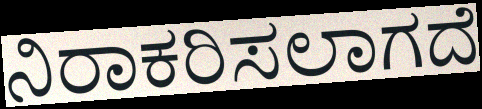
ನಿರಾಕರಿಸಲಾಗದೆ